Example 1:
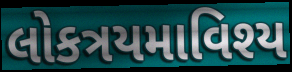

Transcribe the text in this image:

લોકત્રયમાવિશ્ય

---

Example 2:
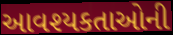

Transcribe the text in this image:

આવશ્યકતાઓની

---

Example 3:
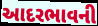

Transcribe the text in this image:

આદરભાવની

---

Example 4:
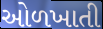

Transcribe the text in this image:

ઓળખાતી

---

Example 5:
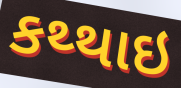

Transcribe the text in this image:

કથ્થાઇ